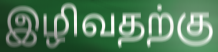
இழிவதற்கு